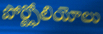
పోర్ట్ఫోలియోలు